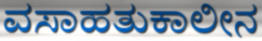
ವಸಾಹತುಕಾಲೀನ